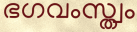
ഭഗവംസ്ത്വം